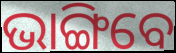
ଭାଙ୍ଗିବେ